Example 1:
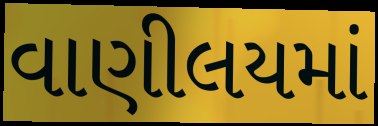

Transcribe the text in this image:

વાણીલયમાં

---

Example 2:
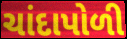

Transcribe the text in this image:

ચાંદાપોળી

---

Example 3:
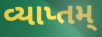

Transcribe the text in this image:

વ્યાપ્તમ્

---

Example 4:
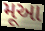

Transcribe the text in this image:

મૂઆ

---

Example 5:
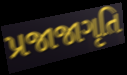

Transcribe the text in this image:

પ્રજાજાગૃતિ